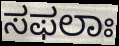
ಸಫಲಾಃ